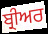
ਬ੍ਰੀਅਰ